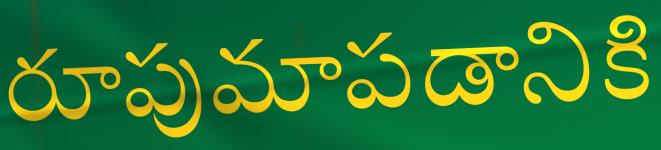
రూపుమాపడానికి